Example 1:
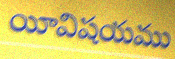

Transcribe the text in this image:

యీవిషయము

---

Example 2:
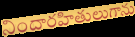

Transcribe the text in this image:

నిందారహితులుగాను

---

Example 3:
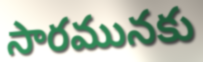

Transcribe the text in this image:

సారమునకు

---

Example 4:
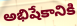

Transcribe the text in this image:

అభిషేకానికి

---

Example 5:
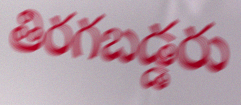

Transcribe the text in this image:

తిరగబడ్డరు